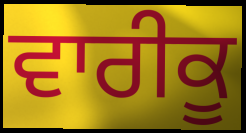
ਵਾਰੀਕੂ